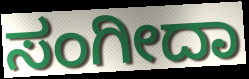
ಸಂಗೀದಾ